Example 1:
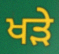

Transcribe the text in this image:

ਖੜੇ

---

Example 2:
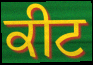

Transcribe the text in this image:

ਕੀਟ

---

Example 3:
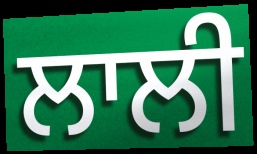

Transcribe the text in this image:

ਲਾਲੀ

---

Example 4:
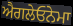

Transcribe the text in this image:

ਐਗਲੇਓਨੇਮਾ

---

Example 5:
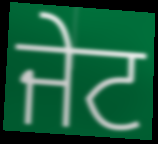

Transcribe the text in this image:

ਜੇਟ